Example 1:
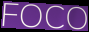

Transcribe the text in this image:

FOCO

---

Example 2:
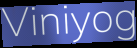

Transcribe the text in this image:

Viniyog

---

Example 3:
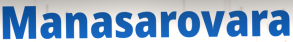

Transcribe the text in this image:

Manasarovara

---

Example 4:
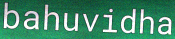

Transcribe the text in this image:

bahuvidha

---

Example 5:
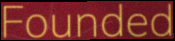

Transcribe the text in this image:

Founded